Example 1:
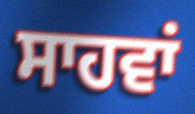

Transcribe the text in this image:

ਸਾਹਵਾਂ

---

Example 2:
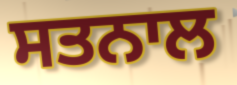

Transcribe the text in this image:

ਸਤਨਾਲ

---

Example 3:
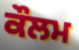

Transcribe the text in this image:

ਕੌਲਮ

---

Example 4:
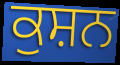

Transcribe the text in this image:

ਕੁਸ਼ਨ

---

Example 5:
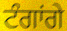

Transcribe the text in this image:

ਟੰਗਾਂਗੇ